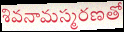
శివనామస్మరణతో